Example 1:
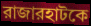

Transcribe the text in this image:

রাজারহাটকে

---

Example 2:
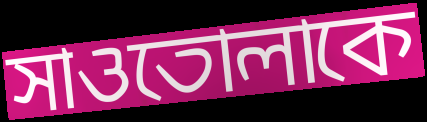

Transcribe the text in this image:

সাওতোলাকে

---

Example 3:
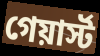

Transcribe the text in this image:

গেয়ার্স্ট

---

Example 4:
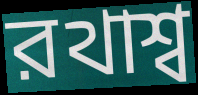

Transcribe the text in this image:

রথাশ্ব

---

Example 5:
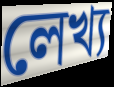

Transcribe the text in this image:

লেখ্য